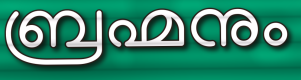
ബ്രഹ്മനും